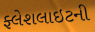
ફ્લેશલાઇટની